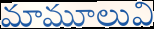
మామూలువి